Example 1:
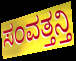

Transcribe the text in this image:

ಸಂವತ್ತನ್ತಿ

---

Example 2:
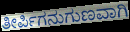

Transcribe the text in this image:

ತೀರ್ಪಿಗನುಗುಣವಾಗಿ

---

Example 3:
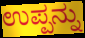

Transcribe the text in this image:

ಉಪ್ಪನ್ನು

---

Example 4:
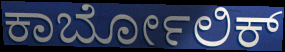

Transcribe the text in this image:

ಕಾರ್ಬೋಲಿಕ್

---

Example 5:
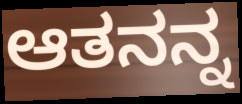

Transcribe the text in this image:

ಆತನನ್ನ